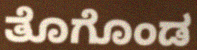
ತೊಗೊಂಡ